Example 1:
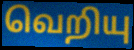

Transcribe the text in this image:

வெறியு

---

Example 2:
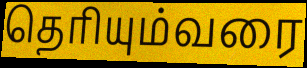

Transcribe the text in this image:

தெரியும்வரை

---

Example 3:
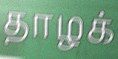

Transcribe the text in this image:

தாழக்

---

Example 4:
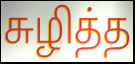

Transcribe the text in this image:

சுழித்த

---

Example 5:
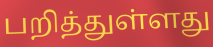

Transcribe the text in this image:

பறித்துள்ளது